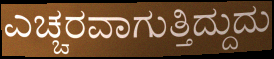
ಎಚ್ಚರವಾಗುತ್ತಿದ್ದುದು